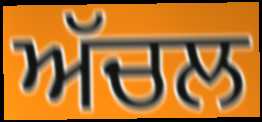
ਅੱਚਲ